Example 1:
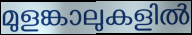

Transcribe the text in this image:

മുളങ്കാലുകളിൽ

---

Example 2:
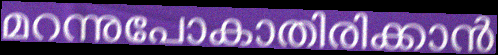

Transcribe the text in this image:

മറന്നുപോകാതിരിക്കാൻ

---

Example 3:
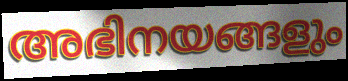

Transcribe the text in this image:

അഭിനയങ്ങളും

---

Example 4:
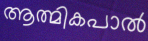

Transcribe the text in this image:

ആത്മികപാൽ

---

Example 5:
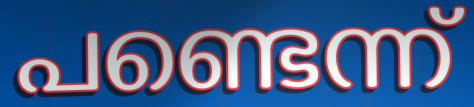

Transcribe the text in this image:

പണ്ടെന്ന്